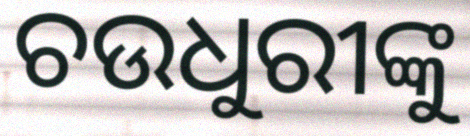
ଚଉଧୁରୀଙ୍କୁ